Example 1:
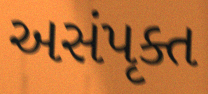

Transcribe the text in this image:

અસંપૃક્ત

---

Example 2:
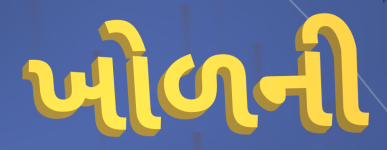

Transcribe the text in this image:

ખોળની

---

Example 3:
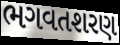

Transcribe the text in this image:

ભગવતશરણ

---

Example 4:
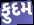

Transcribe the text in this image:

ફુદમ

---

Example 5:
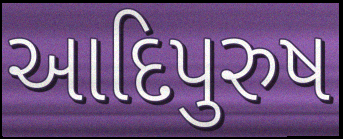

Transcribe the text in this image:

આદિપુરુષ